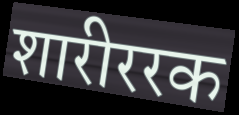
शारीररक